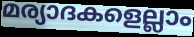
മര്യാദകളെല്ലാം